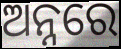
ଅନ୍ନରେ